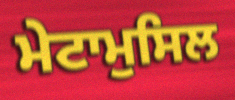
ਮੇਟਾਮੁਸਿਲ